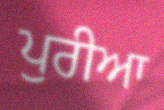
ਪੁਰੀਆ